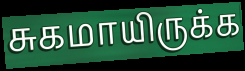
சுகமாயிருக்க